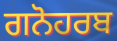
ਗਨੋਹਰਬ